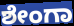
ಶೇಂಗಾ